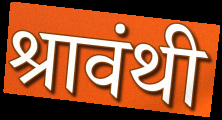
श्रावंथी